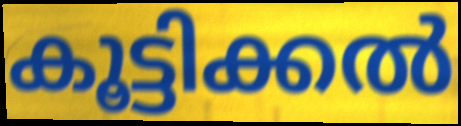
കൂട്ടിക്കൽ